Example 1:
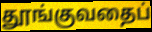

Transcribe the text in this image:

தூங்குவதைப்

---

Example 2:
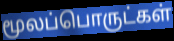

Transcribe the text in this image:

மூலப்பொருட்கள்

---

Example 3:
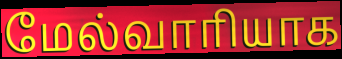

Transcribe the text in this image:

மேல்வாரியாக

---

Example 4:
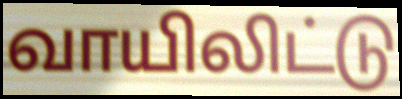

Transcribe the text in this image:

வாயிலிட்டு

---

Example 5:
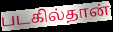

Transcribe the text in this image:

படகில்தான்